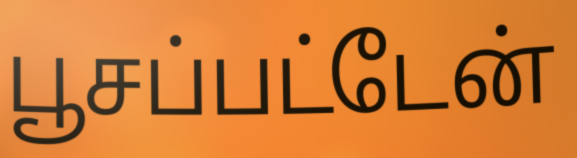
பூசப்பட்டேன்